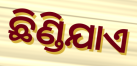
ଛିଣ୍ଡିଯାଏ